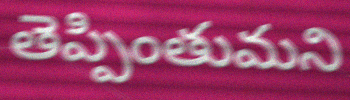
తెప్పింతుమని